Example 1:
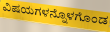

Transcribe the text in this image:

ವಿಷಯಗಳನ್ನೊಳಗೊಂಡ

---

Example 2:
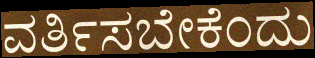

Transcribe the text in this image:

ವರ್ತಿಸಬೇಕೆಂದು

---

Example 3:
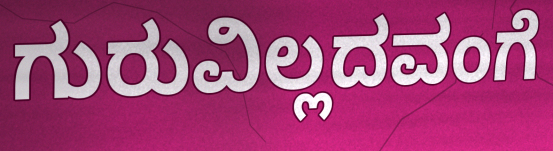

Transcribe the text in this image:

ಗುರುವಿಲ್ಲದವಂಗೆ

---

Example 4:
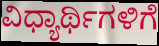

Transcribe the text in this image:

ವಿಧ್ಯಾರ್ಥಿಗಳಿಗೆ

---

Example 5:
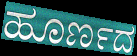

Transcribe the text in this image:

ಹೂರ್ಣದ